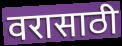
वरासाठी